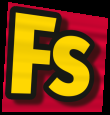
Fs